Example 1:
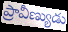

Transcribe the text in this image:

ప్రావీణ్యుడు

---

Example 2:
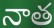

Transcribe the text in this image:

నాత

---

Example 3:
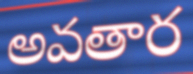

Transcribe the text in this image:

అవతార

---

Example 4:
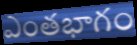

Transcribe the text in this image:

ఎంతభాగం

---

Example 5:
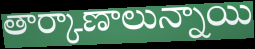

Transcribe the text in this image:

తార్కాణాలున్నాయి